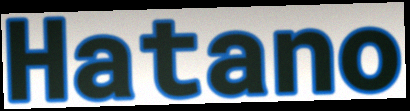
Hatano